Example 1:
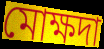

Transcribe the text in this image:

মোক্ষদা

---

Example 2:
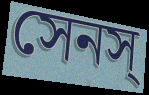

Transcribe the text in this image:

সেনস্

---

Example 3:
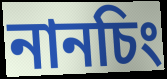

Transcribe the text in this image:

নানচিং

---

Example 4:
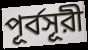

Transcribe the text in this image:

পূর্বসূরী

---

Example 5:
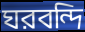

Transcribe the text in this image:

ঘরবন্দি